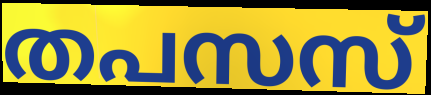
തപസസ്